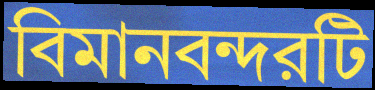
বিমানবন্দরটি